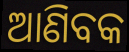
ଆଣିବକ